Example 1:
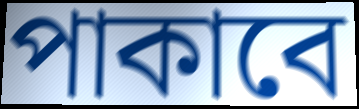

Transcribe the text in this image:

পাকাবে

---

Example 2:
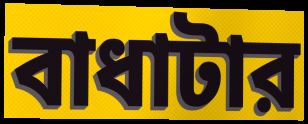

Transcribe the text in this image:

বাধাটার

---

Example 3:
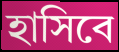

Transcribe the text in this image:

হাসিবে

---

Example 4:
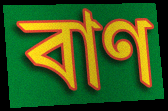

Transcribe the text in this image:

বাণ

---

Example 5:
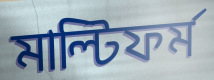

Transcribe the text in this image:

মাল্টিফর্ম